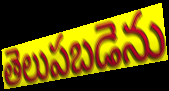
తెలుపబడెను